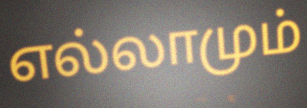
எல்லாமும்